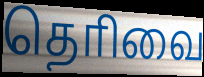
தெரிவை